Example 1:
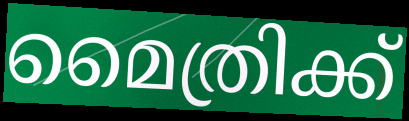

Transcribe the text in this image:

മൈത്രിക്ക്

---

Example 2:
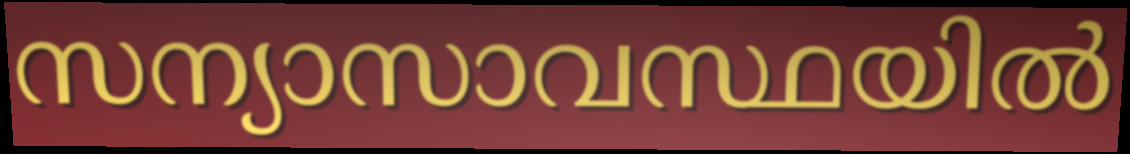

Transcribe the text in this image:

സന്യാസാവസ്ഥയിൽ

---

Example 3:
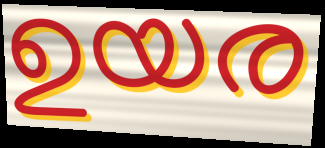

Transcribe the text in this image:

ഉയര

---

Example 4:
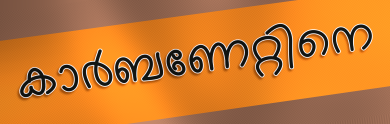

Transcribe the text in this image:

കാർബണേറ്റിനെ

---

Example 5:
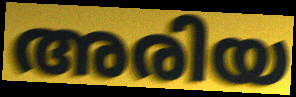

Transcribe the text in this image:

അരിയ